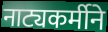
नाट्यकर्मीने